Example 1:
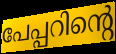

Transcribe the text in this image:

പേപ്പറിന്റെ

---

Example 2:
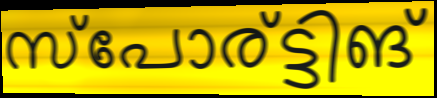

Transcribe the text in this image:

സ്പോര്ട്ടിങ്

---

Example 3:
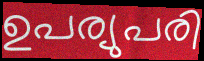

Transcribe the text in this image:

ഉപര്യുപരി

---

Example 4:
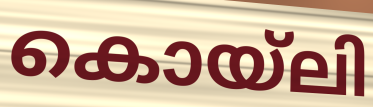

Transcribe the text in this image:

കൊയ്ലി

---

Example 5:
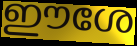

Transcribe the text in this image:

ഈശേ